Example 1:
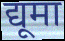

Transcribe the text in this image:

द्यूमा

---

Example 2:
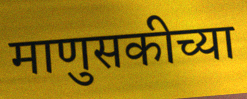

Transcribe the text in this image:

माणुसकीच्या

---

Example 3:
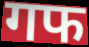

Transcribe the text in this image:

गफ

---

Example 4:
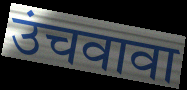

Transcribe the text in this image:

उंचवावा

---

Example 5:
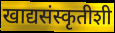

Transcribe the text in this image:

खाद्यसंस्कृतीशी